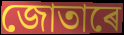
জোতাৰে